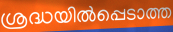
ശ്രദ്ധയിൽപ്പെടാത്ത